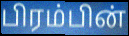
பிரம்பின்